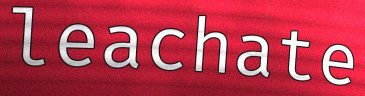
leachate